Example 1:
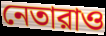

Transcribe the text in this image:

নেতারাও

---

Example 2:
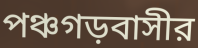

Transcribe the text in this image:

পঞ্চগড়বাসীর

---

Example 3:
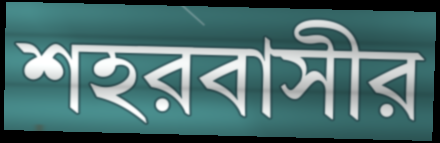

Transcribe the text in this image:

শহরবাসীর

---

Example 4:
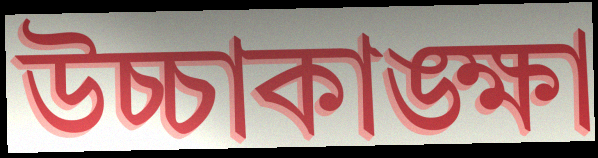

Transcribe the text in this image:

উচ্চাকাঙ্ক্ষা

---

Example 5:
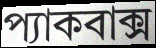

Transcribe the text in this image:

প্যাকবাক্স